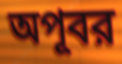
অপূবর